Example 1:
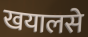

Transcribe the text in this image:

खयालसे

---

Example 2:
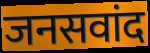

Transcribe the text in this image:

जनसवांद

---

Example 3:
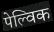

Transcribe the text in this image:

पेल्विक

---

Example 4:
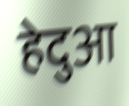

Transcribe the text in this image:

हेदुआ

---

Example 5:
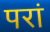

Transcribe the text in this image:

परां